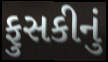
ફુસકીનું